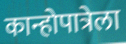
कान्होपात्रेला